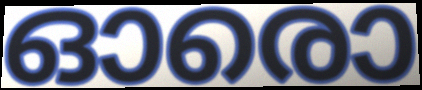
ഓരൊ